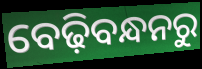
ବେଢ଼ିବନ୍ଧନରୁ